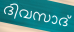
ദിവസാദ്